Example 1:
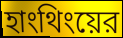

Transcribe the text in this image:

হাংথিংয়ের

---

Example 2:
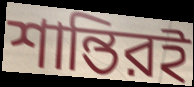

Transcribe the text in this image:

শান্তিরই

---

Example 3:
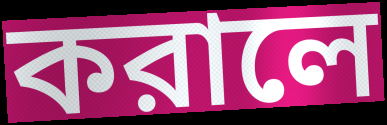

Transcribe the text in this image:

করালে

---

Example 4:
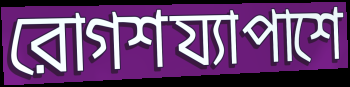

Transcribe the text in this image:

রোগশয্যাপাশে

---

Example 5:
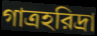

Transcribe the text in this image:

গাত্রহরিদ্রা